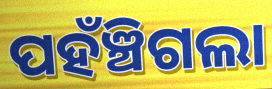
ପହଁଞ୍ଚିଗଲା